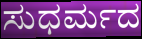
ಸುಧರ್ಮದ